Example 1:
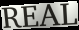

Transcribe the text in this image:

REAL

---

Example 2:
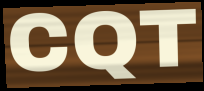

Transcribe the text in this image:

CQT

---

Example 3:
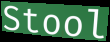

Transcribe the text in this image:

Stool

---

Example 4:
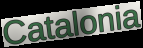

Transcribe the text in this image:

Catalonia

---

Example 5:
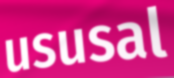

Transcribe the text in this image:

ususal